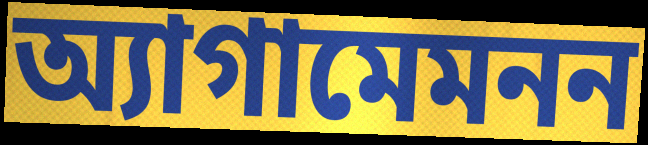
অ্যাগামেমনন